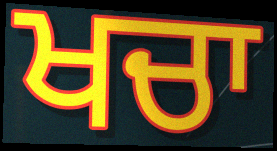
ਖਚਾ